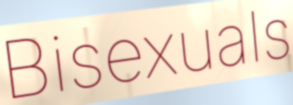
Bisexuals